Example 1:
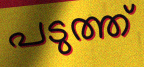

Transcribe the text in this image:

പടുത്ത്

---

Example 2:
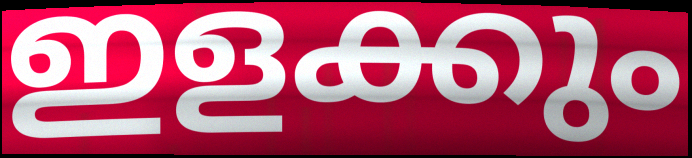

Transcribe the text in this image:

ഇളക്കും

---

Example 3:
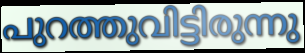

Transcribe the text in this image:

പുറത്തുവിട്ടിരുന്നു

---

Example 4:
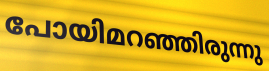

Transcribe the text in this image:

പോയിമറഞ്ഞിരുന്നു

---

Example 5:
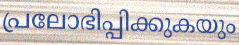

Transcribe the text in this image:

പ്രലോഭിപ്പിക്കുകയും